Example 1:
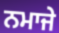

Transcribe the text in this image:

ਨਮਾਜੇ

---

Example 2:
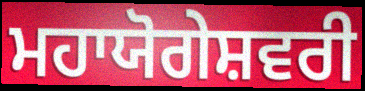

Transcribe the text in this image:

ਮਹਾਯੋਗੇਸ਼ਵਰੀ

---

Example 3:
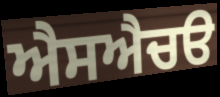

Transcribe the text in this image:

ਐਸਐਚੳ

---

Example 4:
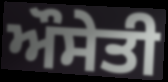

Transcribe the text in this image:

ਔਸੇਤੀ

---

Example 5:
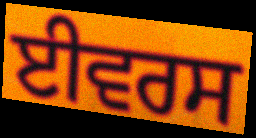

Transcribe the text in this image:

ਈਵਰਸ